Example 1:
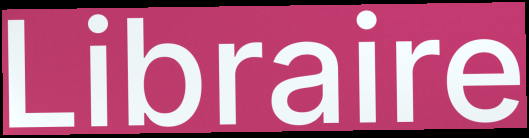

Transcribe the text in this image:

Libraire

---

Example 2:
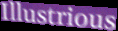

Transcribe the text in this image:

Illustrious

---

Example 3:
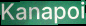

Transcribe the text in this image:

Kanapoi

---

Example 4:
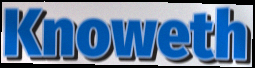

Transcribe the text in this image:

Knoweth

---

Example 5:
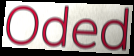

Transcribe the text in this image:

Oded